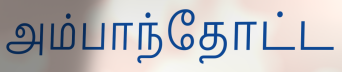
அம்பாந்தோட்ட